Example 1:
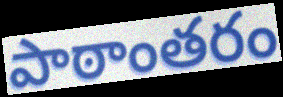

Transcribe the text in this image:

పాఠాంతరం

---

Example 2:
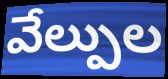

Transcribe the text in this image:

వేల్పుల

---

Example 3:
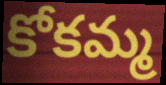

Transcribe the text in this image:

కోకమ్మ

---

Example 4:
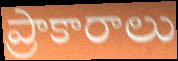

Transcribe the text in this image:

ప్రాకారాలు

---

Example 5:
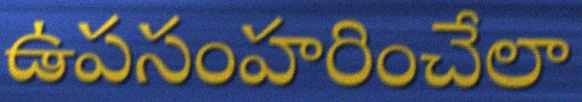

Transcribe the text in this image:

ఉపసంహరించేలా